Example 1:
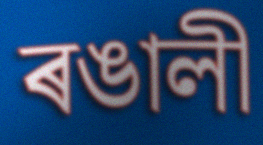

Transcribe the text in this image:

ৰঙালী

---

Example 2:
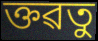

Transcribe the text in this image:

ক্তৱতু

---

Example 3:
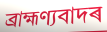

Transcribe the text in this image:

ব্ৰাহ্মণ্যবাদৰ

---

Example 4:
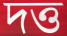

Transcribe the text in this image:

দত্ত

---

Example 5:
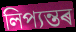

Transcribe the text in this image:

লিপ্যন্তৰ